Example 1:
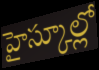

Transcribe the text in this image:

హైస్కూల్లో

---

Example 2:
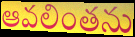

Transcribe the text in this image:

ఆవలింతను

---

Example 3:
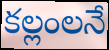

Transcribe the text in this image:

కల్లంలనే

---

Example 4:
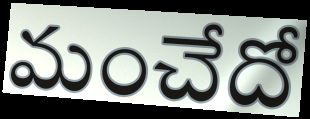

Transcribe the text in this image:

మంచేదో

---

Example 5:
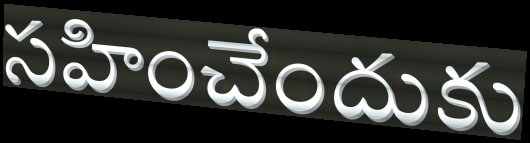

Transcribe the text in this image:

సహించేందుకు